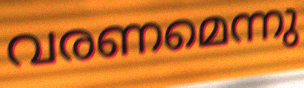
വരണമെന്നു